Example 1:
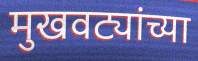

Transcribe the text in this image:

मुखवट्यांच्या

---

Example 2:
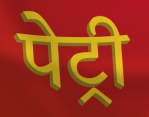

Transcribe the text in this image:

पेट्री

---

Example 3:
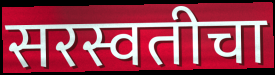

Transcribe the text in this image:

सरस्वतीचा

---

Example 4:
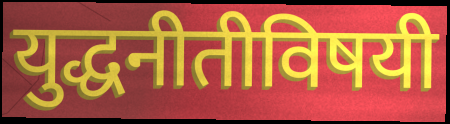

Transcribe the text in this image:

युद्धनीतीविषयी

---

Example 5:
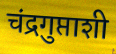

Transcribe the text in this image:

चंद्रगुप्ताशी